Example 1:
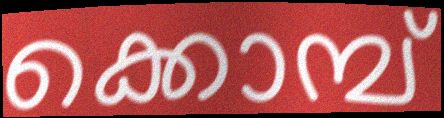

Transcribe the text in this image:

ക്കൊമ്പ്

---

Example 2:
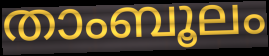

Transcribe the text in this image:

താംബൂലം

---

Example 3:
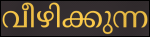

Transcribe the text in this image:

വീഴിക്കുന്ന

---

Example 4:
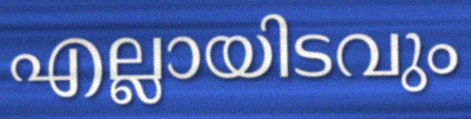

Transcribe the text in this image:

എല്ലായിടവും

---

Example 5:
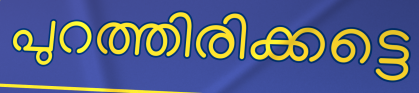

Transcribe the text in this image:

പുറത്തിരിക്കട്ടെ